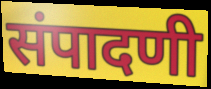
संपादणी